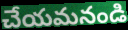
చేయమనండి